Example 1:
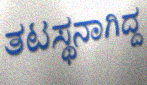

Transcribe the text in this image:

ತಟಸ್ಥನಾಗಿದ್ದ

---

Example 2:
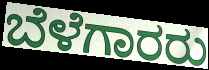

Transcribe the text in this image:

ಬೆಳೆಗಾರರು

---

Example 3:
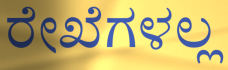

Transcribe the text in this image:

ರೇಖೆಗಳಲ್ಲ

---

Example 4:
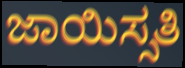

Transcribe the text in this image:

ಜಾಯಿಸ್ಸತಿ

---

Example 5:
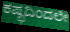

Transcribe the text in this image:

ಕಷ್ಟದಿಂದಲೇ